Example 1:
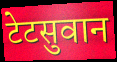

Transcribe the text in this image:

टेटसुवान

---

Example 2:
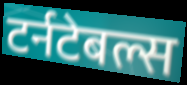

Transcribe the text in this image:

टर्नटेबल्स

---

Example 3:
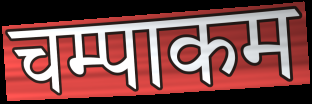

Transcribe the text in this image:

चम्पाकम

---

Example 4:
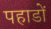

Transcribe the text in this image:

पहाडों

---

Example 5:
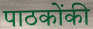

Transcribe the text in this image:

पाठकोंकी